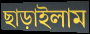
ছাড়াইলাম